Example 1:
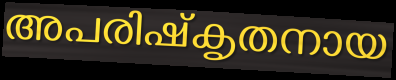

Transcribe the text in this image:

അപരിഷ്‌കൃതനായ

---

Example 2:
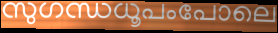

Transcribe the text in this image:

സുഗന്ധധൂപംപോലെ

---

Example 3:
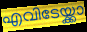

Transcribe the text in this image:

എവിടേയ്ക്കാ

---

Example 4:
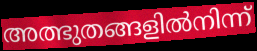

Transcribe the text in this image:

അത്ഭുതങ്ങളിൽനിന്ന്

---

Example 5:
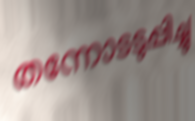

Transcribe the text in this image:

തന്നോടടുപ്പിച്ചു